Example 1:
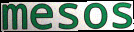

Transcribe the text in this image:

mesos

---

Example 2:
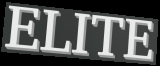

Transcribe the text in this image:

ELITE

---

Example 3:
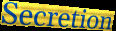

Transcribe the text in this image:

Secretion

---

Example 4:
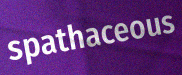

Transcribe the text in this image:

spathaceous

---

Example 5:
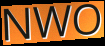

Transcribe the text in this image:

NWO